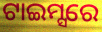
ଟାଇମ୍ସରେ